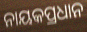
ନାୟକପ୍ରଧାନ